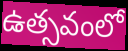
ఉత్సవంలో